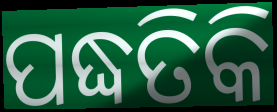
ପଦ୍ଧତିକି